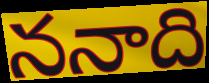
ననాది